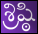
శ్రిష్ఠి